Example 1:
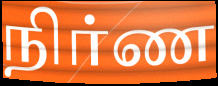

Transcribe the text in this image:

நிர்ண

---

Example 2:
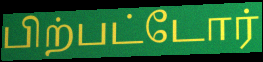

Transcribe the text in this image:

பிற்பட்டோர்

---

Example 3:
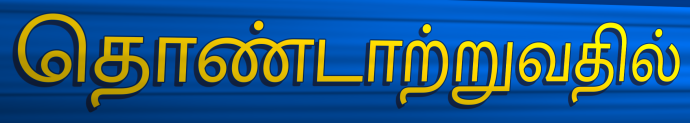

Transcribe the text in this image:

தொண்டாற்றுவதில்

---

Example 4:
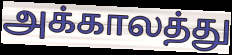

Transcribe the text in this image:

அக்காலத்து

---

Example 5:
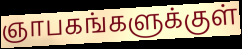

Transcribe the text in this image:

ஞாபகங்களுக்குள்